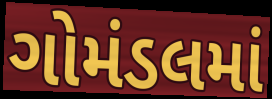
ગોમંડલમાં